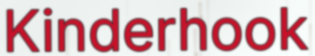
Kinderhook